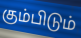
கும்பிடும்